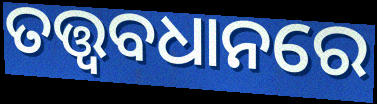
ତତ୍ତ୍ଵବଧାନରେ